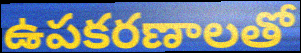
ఉపకరణాలతో